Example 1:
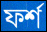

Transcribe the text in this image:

ফর্শ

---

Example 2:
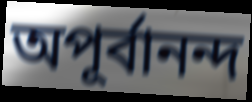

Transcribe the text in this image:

অপূর্বানন্দ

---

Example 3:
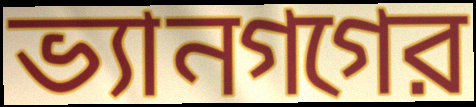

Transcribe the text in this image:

ভ্যানগগের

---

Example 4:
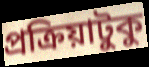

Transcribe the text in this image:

প্রক্রিয়াটুকু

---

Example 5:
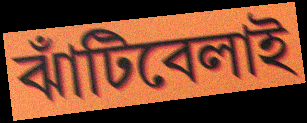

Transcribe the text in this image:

ঝাঁটিবেলাই